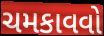
ચમકાવવો